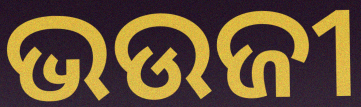
ଭଉଜୀ